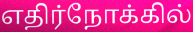
எதிர்நோக்கில்